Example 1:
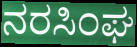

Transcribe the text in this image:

ನರಸಿಂಘ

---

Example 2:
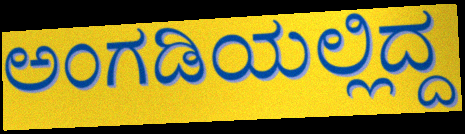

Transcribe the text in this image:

ಅಂಗಡಿಯಲ್ಲಿದ್ದ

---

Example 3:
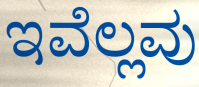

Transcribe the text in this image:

ಇವೆಲ್ಲವು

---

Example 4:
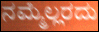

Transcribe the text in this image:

ನಮ್ಮೆಲ್ಲರದು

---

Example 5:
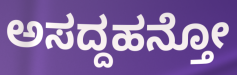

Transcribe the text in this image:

ಅಸದ್ದಹನ್ತೋ